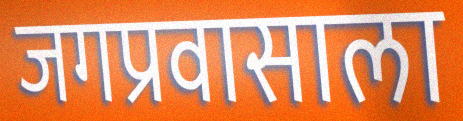
जगप्रवासाला